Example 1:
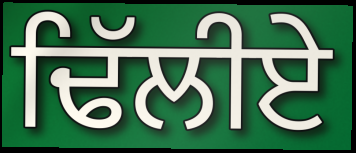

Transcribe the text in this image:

ਢਿੱਲੀਏ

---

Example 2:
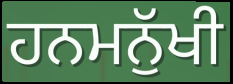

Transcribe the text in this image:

ਹਨਮਨੁੱਖੀ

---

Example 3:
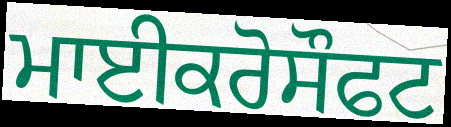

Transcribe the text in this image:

ਮਾਈਕਰੋਸੌਫਟ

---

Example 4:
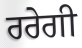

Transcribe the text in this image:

ਰਰੇਗੀ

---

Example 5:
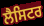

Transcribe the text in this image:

ਲੈਸਿਟਰ